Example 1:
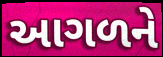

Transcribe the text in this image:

આગળને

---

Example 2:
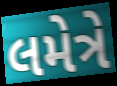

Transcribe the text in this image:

લમેત્રે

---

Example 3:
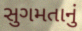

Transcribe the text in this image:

સુગમતાનું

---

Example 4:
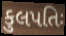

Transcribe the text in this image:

કુલપતિઃ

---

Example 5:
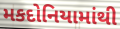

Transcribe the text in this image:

મકદોનિયામાંથી